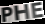
PHE